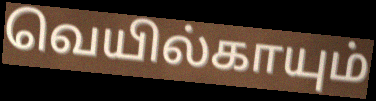
வெயில்காயும்